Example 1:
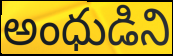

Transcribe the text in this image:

అంధుడిని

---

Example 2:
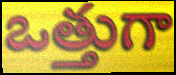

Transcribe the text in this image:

ఒత్తుగా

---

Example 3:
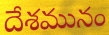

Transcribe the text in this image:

దేశమునం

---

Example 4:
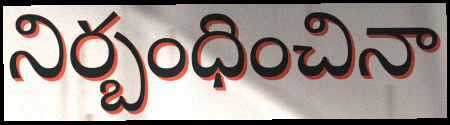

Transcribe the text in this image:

నిర్బంధించినా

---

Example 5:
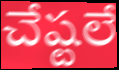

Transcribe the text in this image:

చేష్టలే